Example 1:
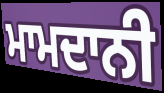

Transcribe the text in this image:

ਮਾਮਦਾਨੀ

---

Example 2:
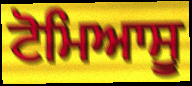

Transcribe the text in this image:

ਟੋਮਿਆਸੂ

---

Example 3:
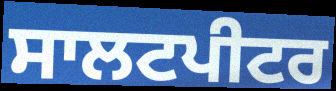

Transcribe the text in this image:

ਸਾਲਟਪੀਟਰ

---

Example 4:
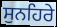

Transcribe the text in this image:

ਸੁਨਹਿਰੇ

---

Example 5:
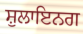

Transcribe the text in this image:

ਸ਼ੁਲਾਇਨਗ